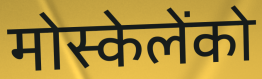
मोस्केलेंको